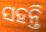
ସହନ୍ତି